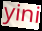
yini